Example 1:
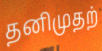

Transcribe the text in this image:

தனிமுதற்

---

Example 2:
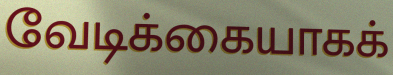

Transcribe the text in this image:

வேடிக்கையாகக்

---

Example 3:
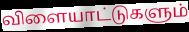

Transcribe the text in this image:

விளையாட்டுகளும்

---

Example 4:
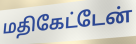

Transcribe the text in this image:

மதிகேட்டேன்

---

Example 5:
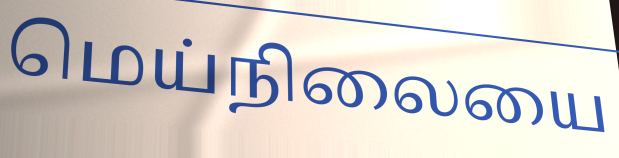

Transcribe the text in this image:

மெய்நிலையை